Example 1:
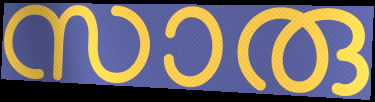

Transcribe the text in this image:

സാരു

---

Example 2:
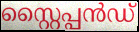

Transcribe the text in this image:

സ്റ്റൈപ്പൻഡ്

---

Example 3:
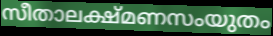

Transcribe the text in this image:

സീതാലക്ഷ്മണസംയുതം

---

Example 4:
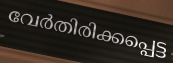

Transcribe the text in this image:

വേർതിരിക്കപ്പെട്ട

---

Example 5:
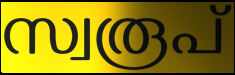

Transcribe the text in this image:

സ്വരൂപ്